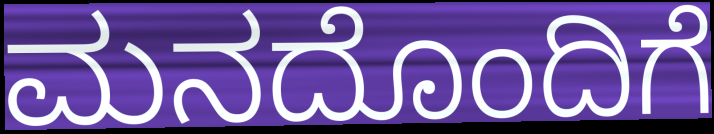
ಮನದೊಂದಿಗೆ